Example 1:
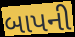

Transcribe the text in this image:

બાપની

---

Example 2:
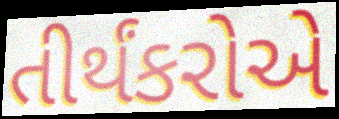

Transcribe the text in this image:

તીર્થંકરોએ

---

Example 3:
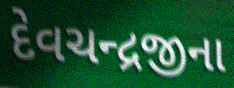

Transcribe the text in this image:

દેવચન્દ્રજીના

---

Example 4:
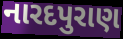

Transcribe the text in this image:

નારદપુરાણ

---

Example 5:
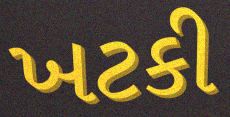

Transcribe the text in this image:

ખટકી